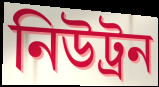
নিউট্ৰন